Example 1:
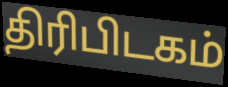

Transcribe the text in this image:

திரிபிடகம்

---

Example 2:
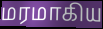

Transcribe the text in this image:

மரமாகிய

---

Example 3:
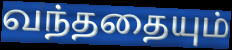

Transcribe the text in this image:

வந்ததையும்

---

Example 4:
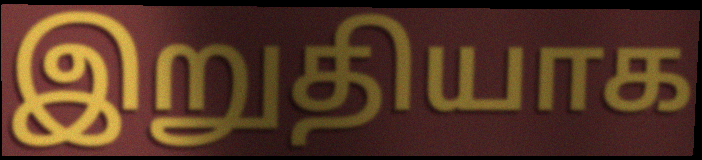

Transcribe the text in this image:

இறுதியாக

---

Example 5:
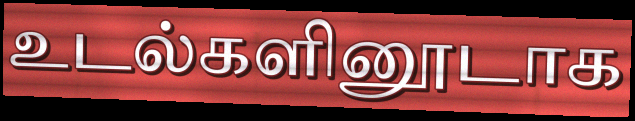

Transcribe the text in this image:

உடல்களினூடாக